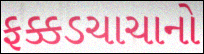
ફક્કડચાચાનો